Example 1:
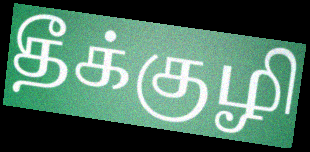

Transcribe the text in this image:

தீக்குழி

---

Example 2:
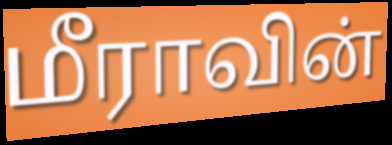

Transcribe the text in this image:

மீராவின்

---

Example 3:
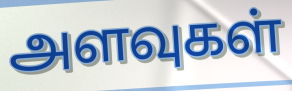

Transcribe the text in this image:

அளவுகள்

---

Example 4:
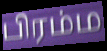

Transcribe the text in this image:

பிரம்ம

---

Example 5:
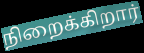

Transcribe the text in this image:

நிறைக்கிறார்